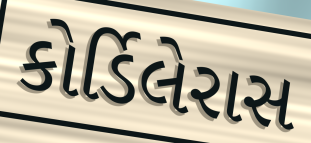
કોર્ડિલેરાસ